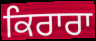
ਕਿਰਾਰਾ